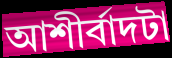
আশীর্বাদটা